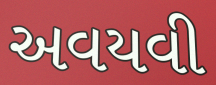
અવયવી